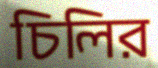
চিলির